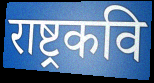
राष्ट्रकवि